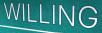
WILLING